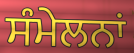
ਸੰਮੇਲਨਾਂ